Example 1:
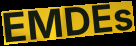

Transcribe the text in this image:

EMDEs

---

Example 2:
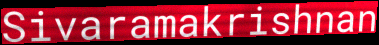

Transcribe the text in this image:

Sivaramakrishnan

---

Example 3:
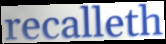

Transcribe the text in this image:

recalleth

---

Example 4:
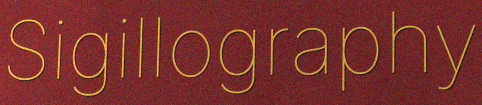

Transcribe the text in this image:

Sigillography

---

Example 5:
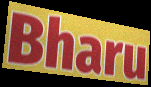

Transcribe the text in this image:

Bharu